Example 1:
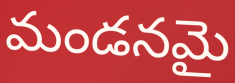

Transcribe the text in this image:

మండనమై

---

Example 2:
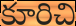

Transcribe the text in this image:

కూరిచి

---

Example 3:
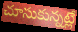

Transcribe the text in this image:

చూసుకున్నట్లే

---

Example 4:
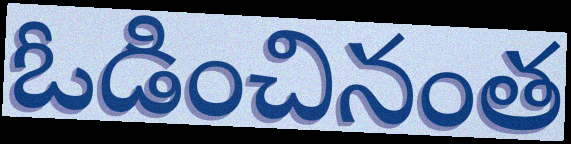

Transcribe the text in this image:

ఓడించినంత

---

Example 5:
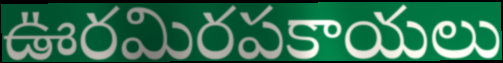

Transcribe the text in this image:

ఊరమిరపకాయలు